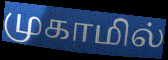
முகாமில்